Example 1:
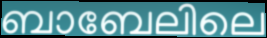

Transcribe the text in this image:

ബാബേലിലെ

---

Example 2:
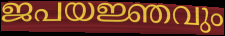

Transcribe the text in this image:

ജപയജ്ഞവും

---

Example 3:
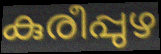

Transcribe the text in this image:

കുരീപ്പുഴ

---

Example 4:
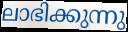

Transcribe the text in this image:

ലാഭിക്കുന്നു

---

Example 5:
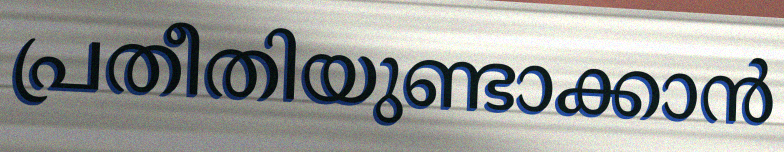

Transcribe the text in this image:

പ്രതീതിയുണ്ടാക്കാൻ